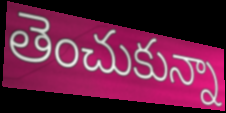
తెంచుకున్నా